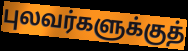
புலவர்களுக்குத்